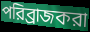
পরিব্রাজকরা